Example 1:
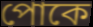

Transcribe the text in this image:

পোকে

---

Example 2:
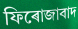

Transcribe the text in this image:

ফিৰোজাবাদ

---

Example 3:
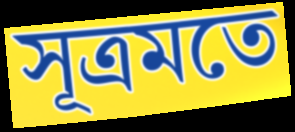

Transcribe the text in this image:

সূত্ৰমতে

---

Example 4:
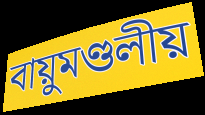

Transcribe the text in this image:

বায়ুমণ্ডলীয়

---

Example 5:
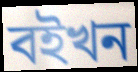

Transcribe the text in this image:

বইখন